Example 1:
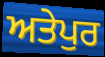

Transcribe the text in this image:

ਅਤੇਪੁਰ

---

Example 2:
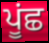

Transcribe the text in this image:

ਪੂਂਛ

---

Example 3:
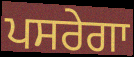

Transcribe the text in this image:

ਪਸਰੇਗਾ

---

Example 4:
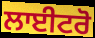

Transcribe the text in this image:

ਲਾਈਟਰੋ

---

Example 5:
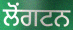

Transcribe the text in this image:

ਲੋਂਗਟਨ